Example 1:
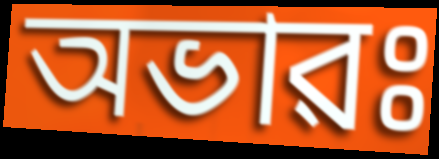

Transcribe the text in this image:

অভাৱঃ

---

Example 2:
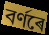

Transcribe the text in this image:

বৰ্ণৰে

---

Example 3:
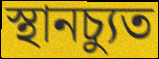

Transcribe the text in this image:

স্থানচ্যুত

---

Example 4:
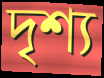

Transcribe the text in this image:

দৃশ্য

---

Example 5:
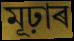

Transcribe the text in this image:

মূঢ়াৰ